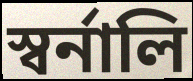
স্বর্নালি